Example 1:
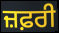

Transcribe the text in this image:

ਜ਼ਫ਼ਰੀ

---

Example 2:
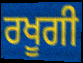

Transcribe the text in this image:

ਰਖੂਗੀ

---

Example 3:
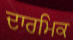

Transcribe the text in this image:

ਦਾਰਮਿਕ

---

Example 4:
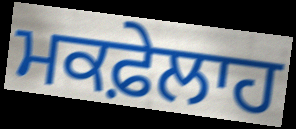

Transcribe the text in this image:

ਮਕਫ਼ੇਲਾਹ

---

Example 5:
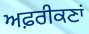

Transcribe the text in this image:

ਅਫ਼ਰੀਕਣਾਂ